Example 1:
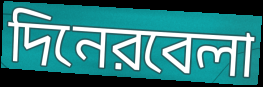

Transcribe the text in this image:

দিনেরবেলা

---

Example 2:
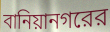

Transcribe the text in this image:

বানিয়ানগরের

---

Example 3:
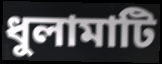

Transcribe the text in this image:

ধুলামাটি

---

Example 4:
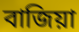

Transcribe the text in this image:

বাজিয়া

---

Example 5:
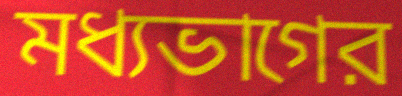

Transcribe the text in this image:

মধ্যভাগের